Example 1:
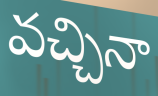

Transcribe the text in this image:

వచ్చినా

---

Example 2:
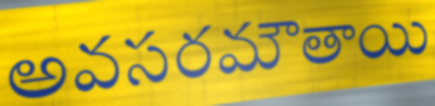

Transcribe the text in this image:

అవసరమౌతాయి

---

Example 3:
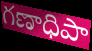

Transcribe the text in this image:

గణాధిపా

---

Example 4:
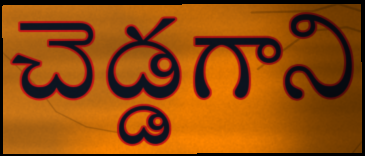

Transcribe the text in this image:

చెడ్డగాని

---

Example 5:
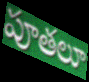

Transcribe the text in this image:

పూతలూ